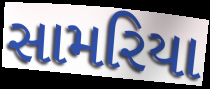
સામરિયા